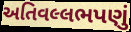
અતિવલ્લભપણું